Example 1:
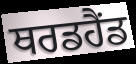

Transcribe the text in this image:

ਥਰਡਹੈਂਡ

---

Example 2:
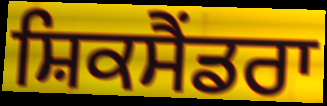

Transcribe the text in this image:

ਸ਼ਿਕਸੈਂਡਰਾ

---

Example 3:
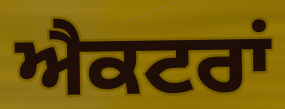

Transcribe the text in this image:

ਐਕਟਰਾਂ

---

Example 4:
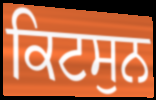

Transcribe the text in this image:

ਕਿਟਸੁਨ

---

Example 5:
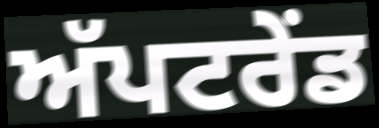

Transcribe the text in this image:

ਅੱਪਟਰੇਂਡ